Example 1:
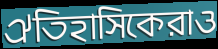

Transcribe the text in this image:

ঐতিহাসিকেরাও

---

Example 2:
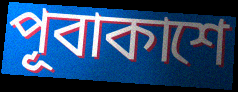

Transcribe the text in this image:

পূবাকাশে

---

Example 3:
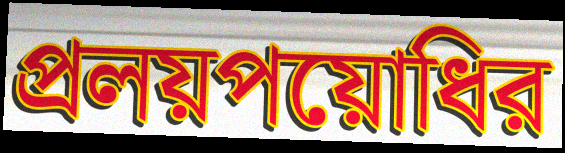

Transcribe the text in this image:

প্রলয়পয়োধির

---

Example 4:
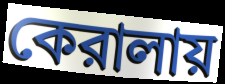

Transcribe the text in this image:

কেরালায়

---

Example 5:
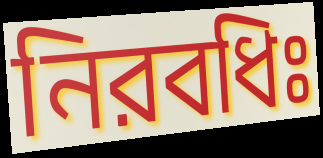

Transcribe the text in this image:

নিরবধিঃ